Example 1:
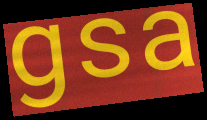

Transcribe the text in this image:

gsa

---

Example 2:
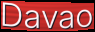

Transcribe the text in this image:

Davao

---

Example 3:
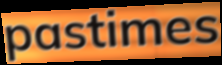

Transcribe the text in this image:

pastimes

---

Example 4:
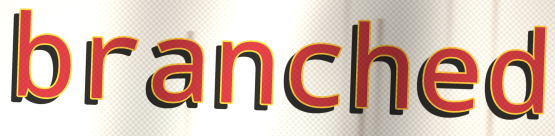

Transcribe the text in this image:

branched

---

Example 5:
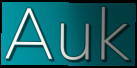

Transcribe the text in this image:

Auk